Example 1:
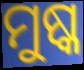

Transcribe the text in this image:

ମୁଷ୍କ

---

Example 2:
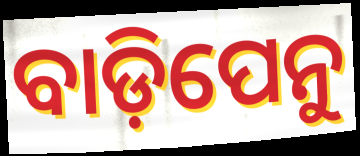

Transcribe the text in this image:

ବାଡ଼ିପେନୁ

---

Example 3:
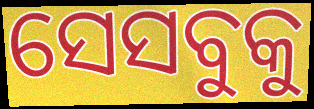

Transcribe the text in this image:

ସେସବୁକୁ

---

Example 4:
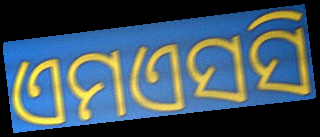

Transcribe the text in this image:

ଏମଏସସି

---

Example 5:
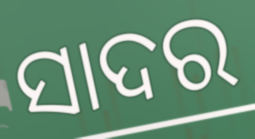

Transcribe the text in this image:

ସାଦର